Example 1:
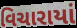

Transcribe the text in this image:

વિચારાયાં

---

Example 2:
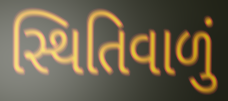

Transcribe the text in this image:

સ્થિતિવાળું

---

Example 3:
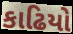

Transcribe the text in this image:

કાઢિયો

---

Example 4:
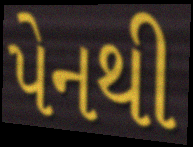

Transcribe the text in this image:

પેનથી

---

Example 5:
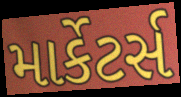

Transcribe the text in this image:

માર્કેટર્સ